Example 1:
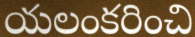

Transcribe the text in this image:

యలంకరించి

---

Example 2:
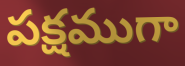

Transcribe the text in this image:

పక్షముగా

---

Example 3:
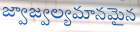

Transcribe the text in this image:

జ్వాజ్వల్యమానమైన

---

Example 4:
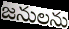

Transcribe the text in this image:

జనులను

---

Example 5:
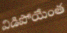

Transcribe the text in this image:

విడిపోయేంత